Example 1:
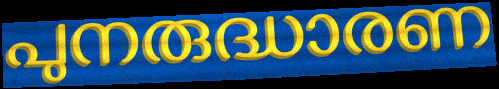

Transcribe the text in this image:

പുനരുദ്ധാരണ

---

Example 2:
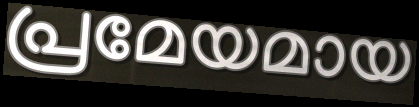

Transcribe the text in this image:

പ്രമേയമായ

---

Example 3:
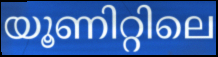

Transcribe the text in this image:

യൂണിറ്റിലെ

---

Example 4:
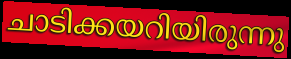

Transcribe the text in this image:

ചാടിക്കയറിയിരുന്നു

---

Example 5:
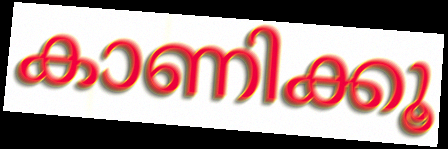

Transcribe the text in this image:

കാണിക്കൂ